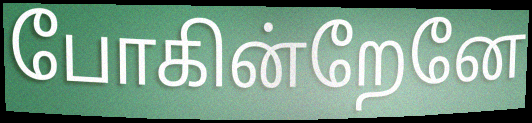
போகின்றேனே